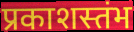
प्रकाशस्तंभ